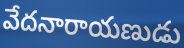
వేదనారాయణుడు